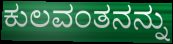
ಕುಲವಂತನನ್ನು